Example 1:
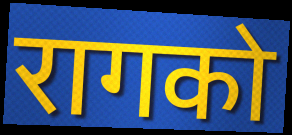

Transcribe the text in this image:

रागको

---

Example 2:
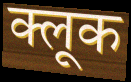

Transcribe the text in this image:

क्लूक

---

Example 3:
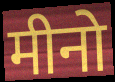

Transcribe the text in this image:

मीनो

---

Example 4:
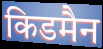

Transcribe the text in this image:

किडमैन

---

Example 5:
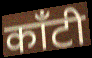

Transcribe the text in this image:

काँटी